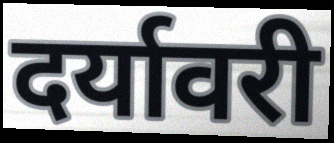
दर्यावरी